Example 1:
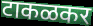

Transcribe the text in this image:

टाकळकर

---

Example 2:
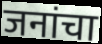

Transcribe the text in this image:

जनांचा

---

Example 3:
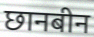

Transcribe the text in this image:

छानबीन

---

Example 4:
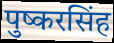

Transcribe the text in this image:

पुष्करसिंह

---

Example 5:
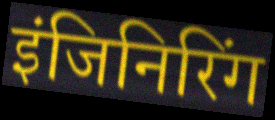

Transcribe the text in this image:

इंजिनिरिंग